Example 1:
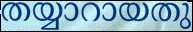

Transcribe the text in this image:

തയ്യാറായതു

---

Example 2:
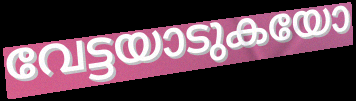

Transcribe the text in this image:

വേട്ടയാടുകയോ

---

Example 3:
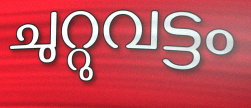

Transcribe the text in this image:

ചുറ്റുവട്ടം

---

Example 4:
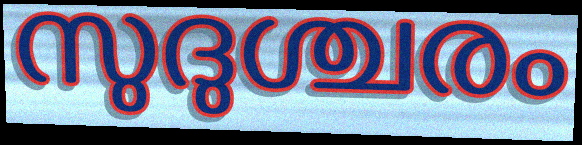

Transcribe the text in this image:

സുദുശ്ചരം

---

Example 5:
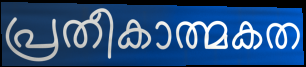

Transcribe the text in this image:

പ്രതീകാത്മകത